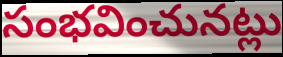
సంభవించునట్లు